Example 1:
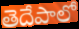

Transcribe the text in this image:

తెదేపాలో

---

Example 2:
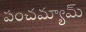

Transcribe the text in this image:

పంచమ్యామ్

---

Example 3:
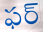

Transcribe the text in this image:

ఫర్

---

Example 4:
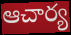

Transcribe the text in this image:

ఆచార్య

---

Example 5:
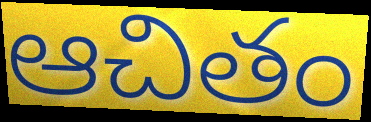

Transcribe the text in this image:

ఆచితం